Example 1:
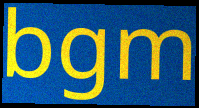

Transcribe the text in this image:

bgm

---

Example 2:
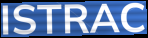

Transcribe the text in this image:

ISTRAC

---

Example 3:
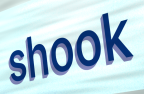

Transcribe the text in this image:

shook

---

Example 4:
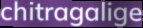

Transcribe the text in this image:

chitragalige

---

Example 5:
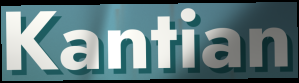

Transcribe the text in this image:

Kantian